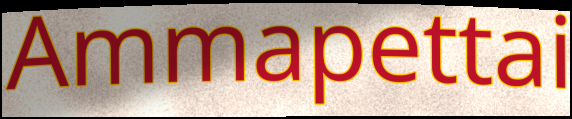
Ammapettai